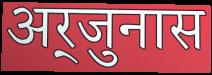
अर्जुनास